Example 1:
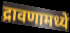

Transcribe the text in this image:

द्रावणामध्ये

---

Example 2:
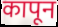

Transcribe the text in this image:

कापून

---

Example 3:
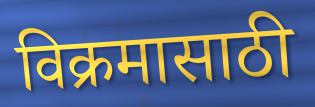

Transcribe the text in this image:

विक्रमासाठी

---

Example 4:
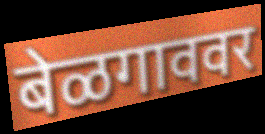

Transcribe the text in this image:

बेळगाववर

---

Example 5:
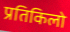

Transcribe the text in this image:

प्रतिकिलो